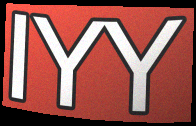
IYY